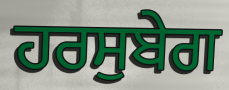
ਹਰਸੁਬੇਗ